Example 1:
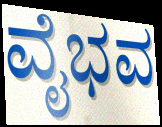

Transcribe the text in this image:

ವೈಭವ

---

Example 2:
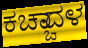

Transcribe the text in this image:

ಕಚ್ಚಾದಳ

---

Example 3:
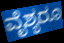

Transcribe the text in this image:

ವೈಶ್ಯರೂ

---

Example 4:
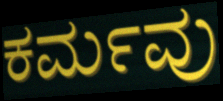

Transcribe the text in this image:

ಕರ್ಮವು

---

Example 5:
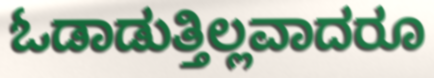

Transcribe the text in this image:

ಓಡಾಡುತ್ತಿಲ್ಲವಾದರೂ